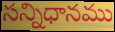
సన్నిధానము